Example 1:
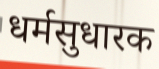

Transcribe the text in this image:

धर्मसुधारक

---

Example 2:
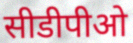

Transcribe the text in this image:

सीडीपीओ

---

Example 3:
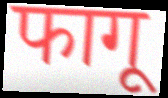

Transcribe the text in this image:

फागू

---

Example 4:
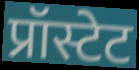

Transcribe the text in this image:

प्रॉस्टेट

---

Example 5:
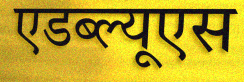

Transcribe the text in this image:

एडब्ल्यूएस